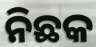
ନିଛକ